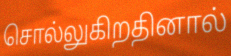
சொல்லுகிறதினால்